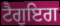
ਟੈਗੁਇਗ